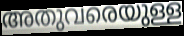
അതുവരെയുള്ള